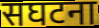
सघटना